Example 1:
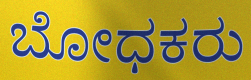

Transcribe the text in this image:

ಬೋಧಕರು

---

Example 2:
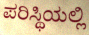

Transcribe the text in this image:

ಪರಿಸ್ಥಿಯಲ್ಲಿ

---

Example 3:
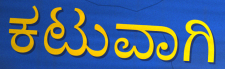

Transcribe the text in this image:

ಕಟುವಾಗಿ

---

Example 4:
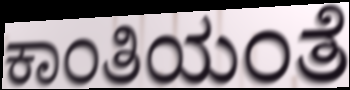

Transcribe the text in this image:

ಕಾಂತಿಯಂತೆ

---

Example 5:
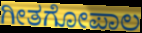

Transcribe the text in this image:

ಗೀತಗೋಪಾಲ